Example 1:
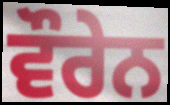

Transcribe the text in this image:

ਵੌਰੇਨ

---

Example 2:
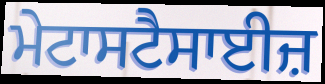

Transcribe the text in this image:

ਮੇਟਾਸਟੈਸਾਈਜ਼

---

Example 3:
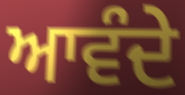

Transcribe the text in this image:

ਆਵੰਦੇ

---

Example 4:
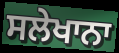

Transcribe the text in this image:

ਸਲੇਖਾਨਾ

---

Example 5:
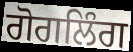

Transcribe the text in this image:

ਗੋਗਲਿੰਗ